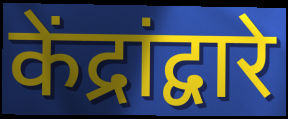
केंद्रांद्वारे